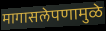
मागासलेपणामुळे